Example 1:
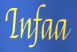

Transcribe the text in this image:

Infaa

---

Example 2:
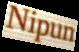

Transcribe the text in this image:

Nipun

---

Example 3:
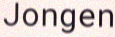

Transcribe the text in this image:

Jongen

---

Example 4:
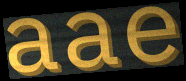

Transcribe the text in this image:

aae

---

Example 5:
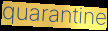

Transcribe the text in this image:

quarantine